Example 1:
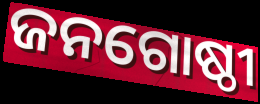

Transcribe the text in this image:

ଜନଗୋଷ୍ଠୀ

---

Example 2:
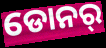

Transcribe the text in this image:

ଡୋନର୍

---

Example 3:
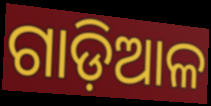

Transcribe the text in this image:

ଗାଡ଼ିଆଳ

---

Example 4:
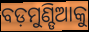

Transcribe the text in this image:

ବଡ଼ମୁଣ୍ଡିଆକୁ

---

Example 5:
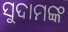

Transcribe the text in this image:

ସୁଦାମଙ୍କ